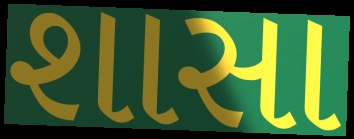
શાસા